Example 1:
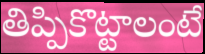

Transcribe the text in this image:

తిప్పికొట్టాలంటే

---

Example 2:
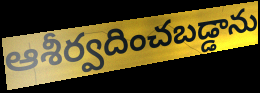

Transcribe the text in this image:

ఆశీర్వదించబడ్డాను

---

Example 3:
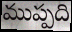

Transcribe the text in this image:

ముప్పది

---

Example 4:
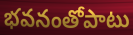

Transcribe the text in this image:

భవనంతోపాటు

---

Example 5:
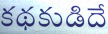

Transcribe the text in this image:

కథకుడిదే